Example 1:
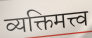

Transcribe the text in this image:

व्यक्तिमत्त्व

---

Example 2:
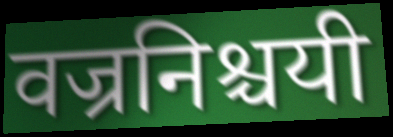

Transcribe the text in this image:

वज्रनिश्चयी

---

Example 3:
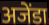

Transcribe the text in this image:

अजेंडा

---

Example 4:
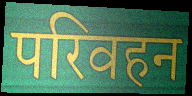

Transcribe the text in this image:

परिवहन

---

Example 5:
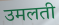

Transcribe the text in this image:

उमलती